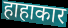
हाहाकार